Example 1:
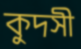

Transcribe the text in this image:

কুদসী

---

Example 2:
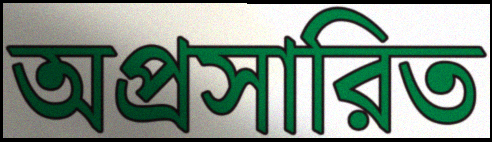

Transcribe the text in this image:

অপ্রসারিত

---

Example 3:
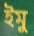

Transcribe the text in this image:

ইমু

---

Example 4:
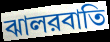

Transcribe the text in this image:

ঝালরবাতি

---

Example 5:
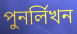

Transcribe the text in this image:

পুনর্লিখন